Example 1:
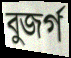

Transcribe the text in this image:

বুজর্গ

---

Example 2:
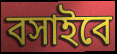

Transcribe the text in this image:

বসাইবে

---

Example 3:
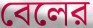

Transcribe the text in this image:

বেলের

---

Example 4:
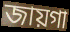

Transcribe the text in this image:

জায়গা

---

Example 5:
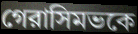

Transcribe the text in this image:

গেরাসিমভকে